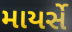
માયર્સે